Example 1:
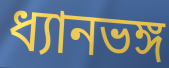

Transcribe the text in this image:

ধ্যানভঙ্গ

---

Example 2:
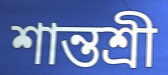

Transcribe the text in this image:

শান্তশ্রী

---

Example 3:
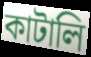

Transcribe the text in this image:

কাটালি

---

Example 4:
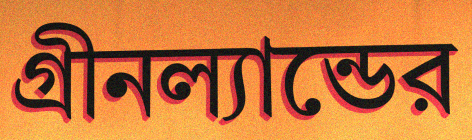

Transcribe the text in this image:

গ্রীনল্যান্ডের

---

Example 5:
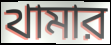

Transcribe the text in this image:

থামার